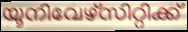
യൂനിവേഴ്സിറ്റിക്ക്